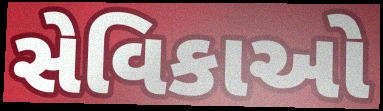
સેવિકાઓ